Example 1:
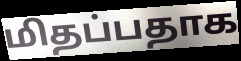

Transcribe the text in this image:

மிதப்பதாக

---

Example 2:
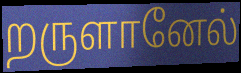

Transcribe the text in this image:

றருளானேல்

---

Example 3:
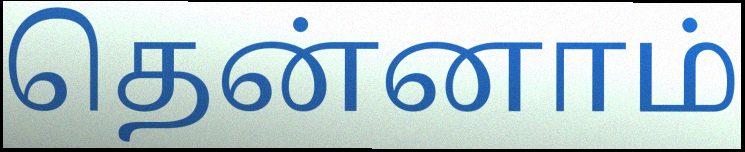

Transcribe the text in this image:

தென்னாம்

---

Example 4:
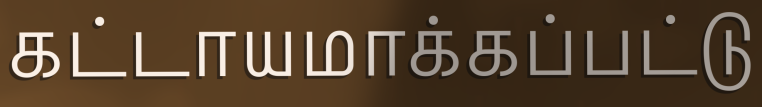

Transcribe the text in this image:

கட்டாயமாக்கப்பட்டு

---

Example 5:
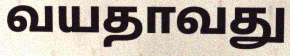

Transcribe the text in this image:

வயதாவது